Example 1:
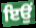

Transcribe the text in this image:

ਇਉਂ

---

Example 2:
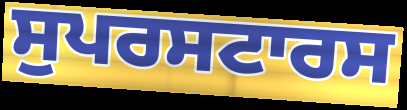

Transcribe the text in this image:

ਸੁਪਰਸਟਾਰਸ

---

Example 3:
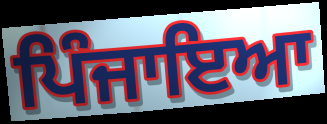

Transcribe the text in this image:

ਪਿੰਜਾਇਆ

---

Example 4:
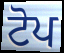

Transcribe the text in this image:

ਟੋਪ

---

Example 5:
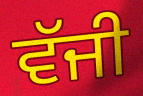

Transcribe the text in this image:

ਵੱਜੀ